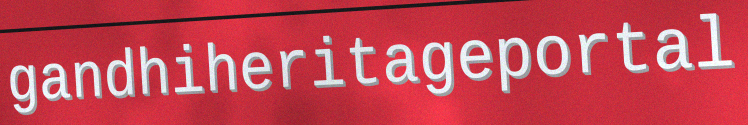
gandhiheritageportal